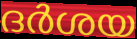
ദർശയ